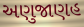
અણુજાણહ